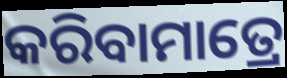
କରିବାମାତ୍ରେ